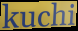
kuchi